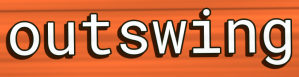
outswing